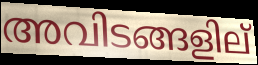
അവിടങ്ങളില്